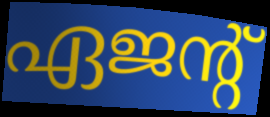
ഏജന്റ്